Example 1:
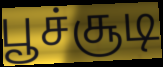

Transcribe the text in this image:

பூச்சூடி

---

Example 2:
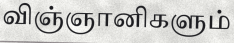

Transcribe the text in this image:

விஞ்ஞானிகளும்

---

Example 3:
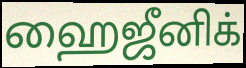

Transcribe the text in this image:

ஹைஜீனிக்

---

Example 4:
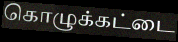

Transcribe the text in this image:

கொழுக்கட்டை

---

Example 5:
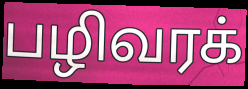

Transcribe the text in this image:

பழிவரக்